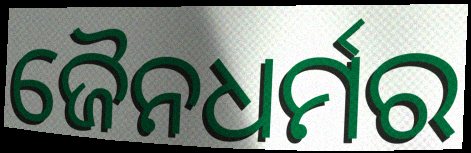
ଜୈନଧର୍ମର